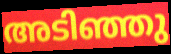
അടിഞ്ഞു